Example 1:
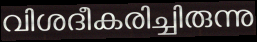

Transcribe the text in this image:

വിശദീകരിച്ചിരുന്നു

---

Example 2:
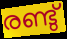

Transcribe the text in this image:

രണ്ടു്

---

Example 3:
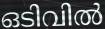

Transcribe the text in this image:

ഒടിവിൽ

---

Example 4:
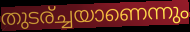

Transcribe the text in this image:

തുടര്ച്ചയാണെന്നും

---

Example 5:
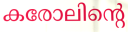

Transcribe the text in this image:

കരോലിന്റെ